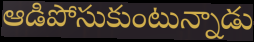
ఆడిపోసుకుంటున్నాడు